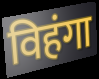
विहंगा